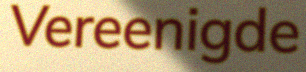
Vereenigde